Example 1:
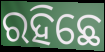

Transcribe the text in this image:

ରହିଛେ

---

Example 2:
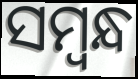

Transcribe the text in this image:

ସମ୍ୱନ୍ଧ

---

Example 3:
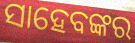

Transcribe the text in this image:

ସାହେବଙ୍କର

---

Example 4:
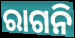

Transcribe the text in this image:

ରାଗନି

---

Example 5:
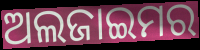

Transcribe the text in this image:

ଅଲଜାଇମର